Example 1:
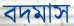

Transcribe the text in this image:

বদমাস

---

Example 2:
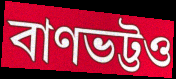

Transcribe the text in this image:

বাণভট্টও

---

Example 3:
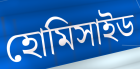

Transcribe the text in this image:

হোমিসাইড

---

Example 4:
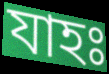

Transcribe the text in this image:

যাহঃ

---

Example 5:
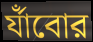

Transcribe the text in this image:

র্যাঁবোর